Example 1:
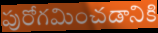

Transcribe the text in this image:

పురోగమించడానికి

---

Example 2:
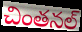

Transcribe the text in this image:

చింతనల్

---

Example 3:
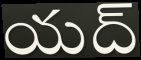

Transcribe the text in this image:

యద్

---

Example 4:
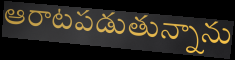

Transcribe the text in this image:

ఆరాటపడుతున్నాను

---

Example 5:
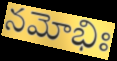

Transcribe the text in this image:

నమోభిః